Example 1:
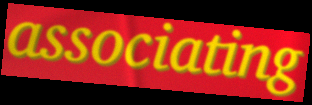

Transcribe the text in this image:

associating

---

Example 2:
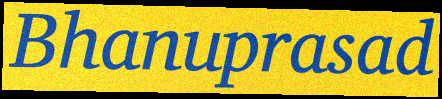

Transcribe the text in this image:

Bhanuprasad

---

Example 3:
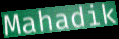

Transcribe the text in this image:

Mahadik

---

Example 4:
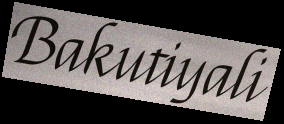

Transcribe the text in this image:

Bakutiyali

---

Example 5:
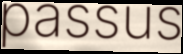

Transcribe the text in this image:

passus